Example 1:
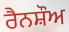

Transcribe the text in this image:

ਰੈਨਸ਼ੌਅ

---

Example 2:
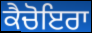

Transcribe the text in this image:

ਕੈਚੋਇਰਾ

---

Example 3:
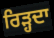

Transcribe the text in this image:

ਰਿੜ੍ਹਦਾ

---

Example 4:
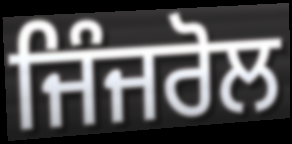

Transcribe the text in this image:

ਜਿੰਜਰੋਲ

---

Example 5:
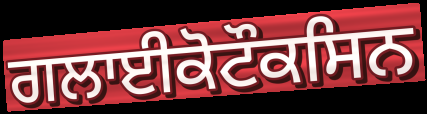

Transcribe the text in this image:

ਗਲਾਈਕੋਟੌਕਸਿਨ